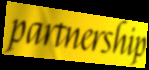
partnership